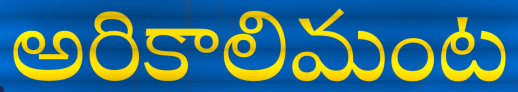
అరికాలిమంట